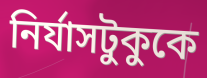
নির্যাসটুকুকে